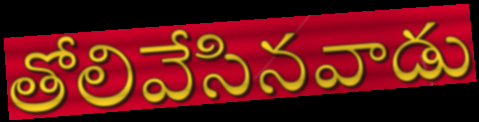
తోలివేసినవాడు